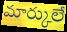
మార్కులే